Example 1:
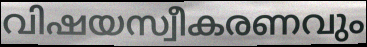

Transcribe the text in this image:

വിഷയസ്വീകരണവും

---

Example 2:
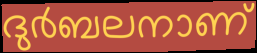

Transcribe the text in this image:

ദുർബലനാണ്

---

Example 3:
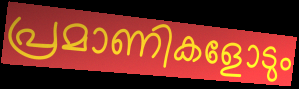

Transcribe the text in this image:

പ്രമാണികളോടും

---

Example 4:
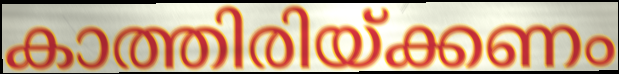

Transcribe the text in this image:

കാത്തിരിയ്ക്കണം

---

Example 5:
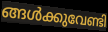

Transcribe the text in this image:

ങ്ങൾക്കുവേണ്ടി